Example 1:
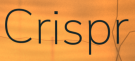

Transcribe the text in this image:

Crispr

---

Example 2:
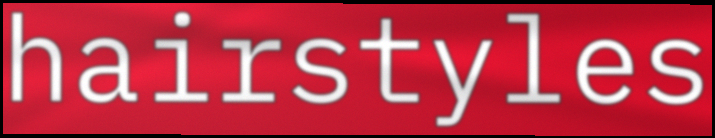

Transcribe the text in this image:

hairstyles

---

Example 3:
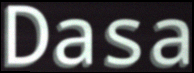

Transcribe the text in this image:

Dasa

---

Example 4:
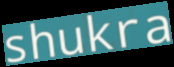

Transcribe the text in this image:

shukra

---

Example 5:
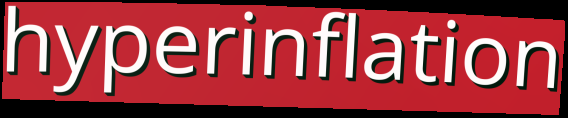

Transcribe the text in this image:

hyperinflation